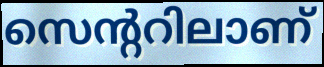
സെന്ററിലാണ്